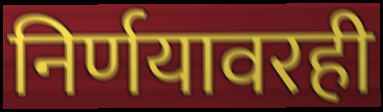
निर्णयावरही